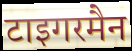
टाइगरमैन